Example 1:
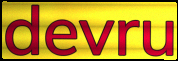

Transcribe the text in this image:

devru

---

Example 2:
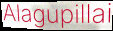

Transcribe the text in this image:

Alagupillai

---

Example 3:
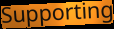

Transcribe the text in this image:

Supporting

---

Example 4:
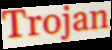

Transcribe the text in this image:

Trojan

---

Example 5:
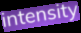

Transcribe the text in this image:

intensity